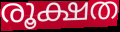
രൂക്ഷത